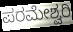
ಪರಮೇಶ್ವರಿ